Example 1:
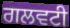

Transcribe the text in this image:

ਗਲਵਟੀ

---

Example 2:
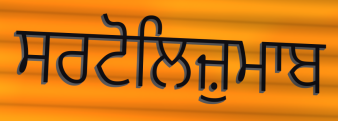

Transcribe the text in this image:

ਸਰਟੋਲਿਜ਼ੁਮਾਬ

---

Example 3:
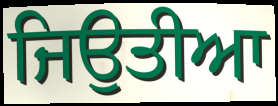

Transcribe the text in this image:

ਜਿਉਤੀਆ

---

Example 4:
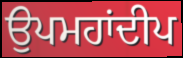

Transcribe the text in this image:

ਉਪਮਹਾਂਦੀਪ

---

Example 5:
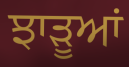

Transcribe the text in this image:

ਝਾੜੂਆਂ